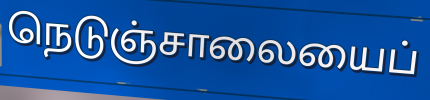
நெடுஞ்சாலையைப்